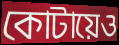
কোটায়েও